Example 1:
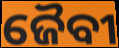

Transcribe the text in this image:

ଜୈବୀ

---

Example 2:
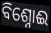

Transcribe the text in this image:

ବିଶ୍ନୋଈ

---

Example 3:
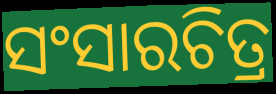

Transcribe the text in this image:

ସଂସାରଚିତ୍ର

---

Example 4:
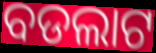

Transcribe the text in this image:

ବଡଲାଟ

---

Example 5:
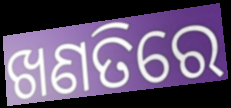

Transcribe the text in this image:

ଖଣତିରେ